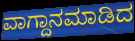
ವಾಗ್ದಾನಮಾಡಿದ